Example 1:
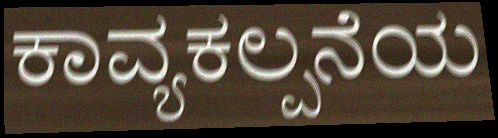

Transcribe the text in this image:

ಕಾವ್ಯಕಲ್ಪನೆಯ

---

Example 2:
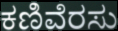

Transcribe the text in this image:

ಕಣಿವೆರಸು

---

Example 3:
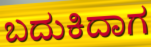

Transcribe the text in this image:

ಬದುಕಿದಾಗ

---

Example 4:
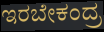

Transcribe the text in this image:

ಇರಬೇಕಂದ್ರ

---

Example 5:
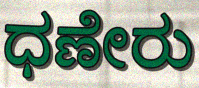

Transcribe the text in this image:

ಧಣೇರು